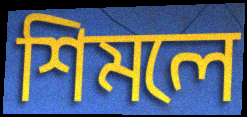
শিমলে